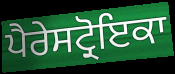
ਪੈਰੇਸਟ੍ਰੋਇਕਾ